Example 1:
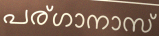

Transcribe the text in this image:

പര്ഗാനാസ്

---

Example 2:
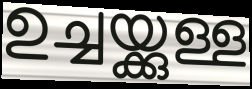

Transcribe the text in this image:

ഉച്ചയ്ക്കുള്ള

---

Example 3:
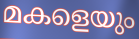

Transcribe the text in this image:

മകളെയും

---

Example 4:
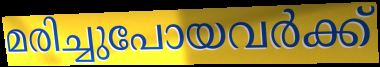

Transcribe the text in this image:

മരിച്ചുപോയവർക്ക്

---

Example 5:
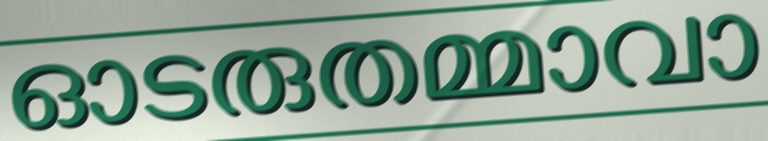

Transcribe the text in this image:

ഓടരുതമ്മാവാ